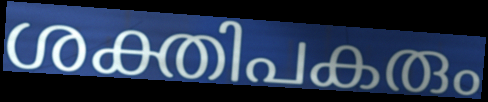
ശക്തിപകരും